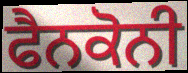
ਫੈਨਕੋਨੀ